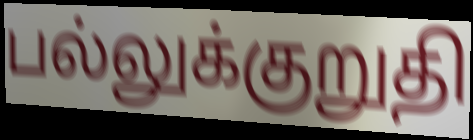
பல்லுக்குறுதி